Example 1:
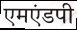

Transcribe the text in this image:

एमएंडपी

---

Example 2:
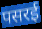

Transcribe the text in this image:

पसरई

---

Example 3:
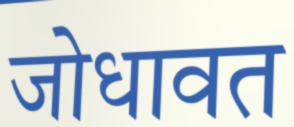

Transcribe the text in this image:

जोधावत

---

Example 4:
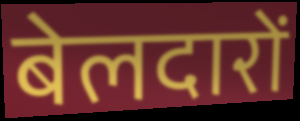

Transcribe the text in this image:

बेलदारों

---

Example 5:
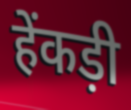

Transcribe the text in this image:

हेंकड़ी